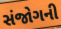
સંજોગની